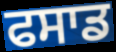
ਫਸਾਡ